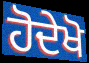
ਹੋਦੇਖੋ